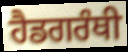
ਹੈਡਗਰੰਥੀ